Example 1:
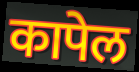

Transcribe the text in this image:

कापेल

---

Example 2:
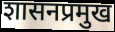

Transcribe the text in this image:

शासनप्रमुख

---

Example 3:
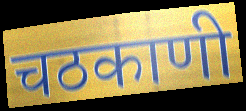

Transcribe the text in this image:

चठकाणी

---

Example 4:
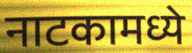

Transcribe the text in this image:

नाटकामध्ये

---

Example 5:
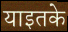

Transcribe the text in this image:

याइतके